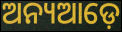
ଅନ୍ୟଆଡ଼େ